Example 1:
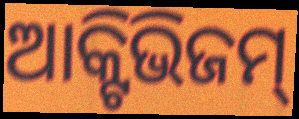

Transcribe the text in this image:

ଆକ୍ଟିଭିଜମ୍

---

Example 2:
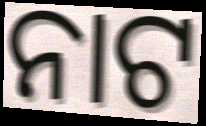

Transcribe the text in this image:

ନାଟ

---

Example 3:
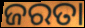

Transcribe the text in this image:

ଜରତା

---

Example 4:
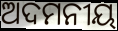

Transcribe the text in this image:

ଅଦମନୀୟ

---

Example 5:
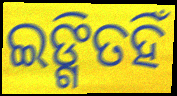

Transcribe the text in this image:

ଇଙ୍ଗିତହିଁ